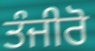
ਤੰਜੀਰੋ